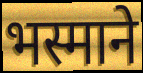
भस्माने